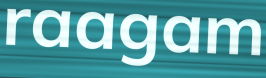
raagam